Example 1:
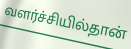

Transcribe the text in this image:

வளர்ச்சியில்தான்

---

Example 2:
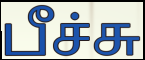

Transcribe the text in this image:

பீச்சு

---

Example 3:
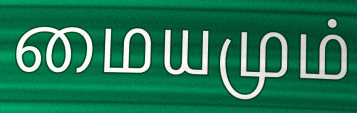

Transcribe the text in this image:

மையமும்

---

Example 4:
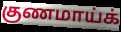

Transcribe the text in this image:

குணமாய்க்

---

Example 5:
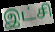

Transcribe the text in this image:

இட்சி